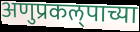
अणुप्रकल्पाच्या